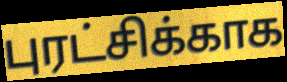
புரட்சிக்காக